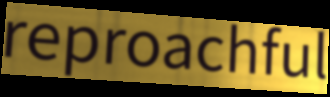
reproachful